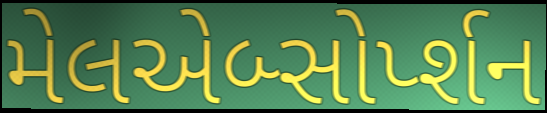
મેલએબ્સોર્પ્શન